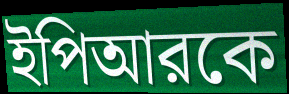
ইপিআরকে